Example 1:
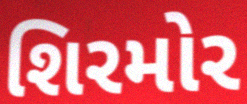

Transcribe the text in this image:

શિરમોર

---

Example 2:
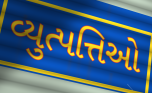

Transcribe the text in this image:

વ્યુત્પત્તિઓ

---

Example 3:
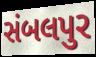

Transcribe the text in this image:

સંબલપુર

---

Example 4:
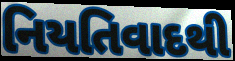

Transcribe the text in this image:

નિયતિવાદથી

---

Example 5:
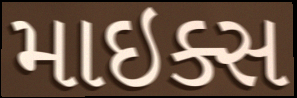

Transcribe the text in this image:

માઇક્સ